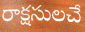
రాక్షసులచే